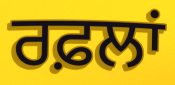
ਰਫ਼ਲਾਂ